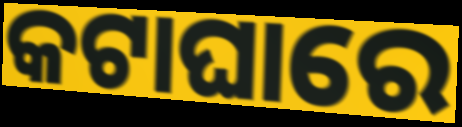
କଟାଘାରେ